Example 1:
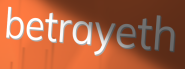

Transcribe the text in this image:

betrayeth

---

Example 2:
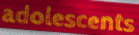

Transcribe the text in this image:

adolescents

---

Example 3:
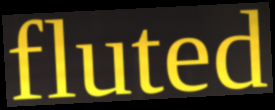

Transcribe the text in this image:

fluted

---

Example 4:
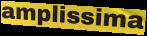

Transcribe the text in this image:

amplissima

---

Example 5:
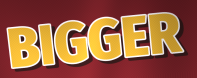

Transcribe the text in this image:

BIGGER